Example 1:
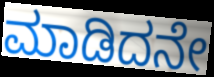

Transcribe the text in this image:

ಮಾಡಿದನೇ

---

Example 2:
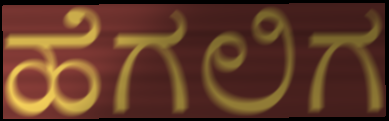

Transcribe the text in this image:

ಹೆಗಲಿಗ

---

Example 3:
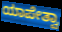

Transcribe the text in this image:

ಯಾಪೇತ್ವಾ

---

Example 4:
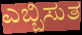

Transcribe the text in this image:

ಎಬ್ಬಿಸುತ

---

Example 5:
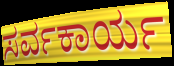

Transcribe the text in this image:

ಸರ್ವಕಾರ್ಯ